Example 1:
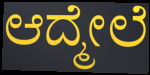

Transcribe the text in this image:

ಆದ್ಮೇಲೆ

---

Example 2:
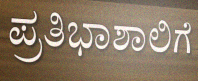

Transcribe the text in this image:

ಪ್ರತಿಭಾಶಾಲಿಗೆ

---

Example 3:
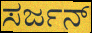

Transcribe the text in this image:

ಸರ್ಜನ್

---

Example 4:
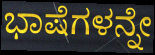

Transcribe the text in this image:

ಭಾಷೆಗಳನ್ನೇ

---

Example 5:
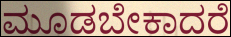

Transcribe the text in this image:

ಮೂಡಬೇಕಾದರೆ